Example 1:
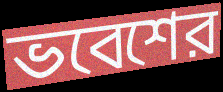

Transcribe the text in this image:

ভবেশের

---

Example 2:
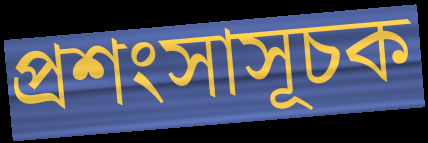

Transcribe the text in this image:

প্রশংসাসূচক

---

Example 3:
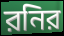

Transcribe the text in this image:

রনির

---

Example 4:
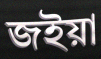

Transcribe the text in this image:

জইয়া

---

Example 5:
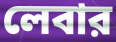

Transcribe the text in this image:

লেবার